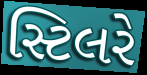
સ્ટિલરે